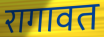
रागावत